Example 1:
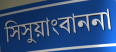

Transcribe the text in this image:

সিসুয়াংবাননা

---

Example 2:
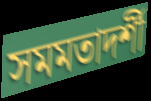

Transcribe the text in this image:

সমমতাদর্শী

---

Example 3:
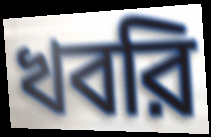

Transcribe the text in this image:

খবরি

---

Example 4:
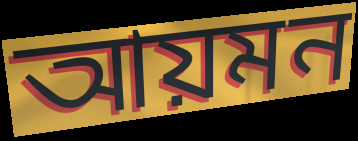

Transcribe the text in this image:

আয়মন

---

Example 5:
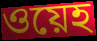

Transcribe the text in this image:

ওয়েহ